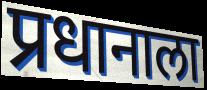
प्रधानाला